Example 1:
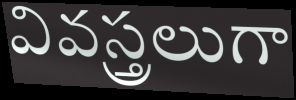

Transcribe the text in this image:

వివస్త్రలుగా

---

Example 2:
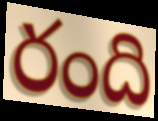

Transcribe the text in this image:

రంది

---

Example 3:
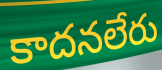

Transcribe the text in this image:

కాదనలేరు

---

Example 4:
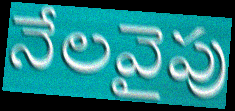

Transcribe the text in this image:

నేలవైపు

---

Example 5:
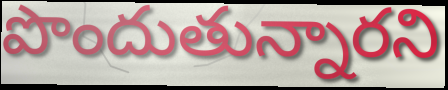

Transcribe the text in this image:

పొందుతున్నారని